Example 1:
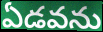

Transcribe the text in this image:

ఏడవను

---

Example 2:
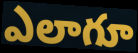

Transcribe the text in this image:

ఎలాగూ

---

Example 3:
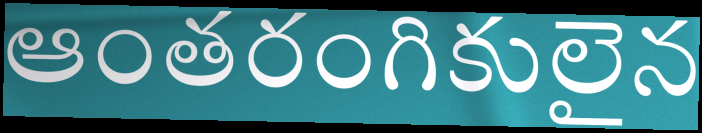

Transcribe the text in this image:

ఆంతరంగికులైన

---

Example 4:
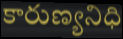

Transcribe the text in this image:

కారుణ్యనిధి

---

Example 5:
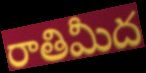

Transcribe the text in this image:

రాతిమీద